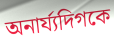
অনার্য্যদিগকে